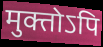
मुक्तोऽपि